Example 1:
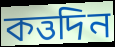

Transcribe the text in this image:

কত্তদিন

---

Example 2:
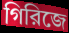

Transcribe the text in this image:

গিরিজে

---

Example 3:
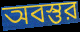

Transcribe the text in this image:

অবস্তুর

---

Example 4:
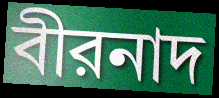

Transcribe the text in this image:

বীরনাদ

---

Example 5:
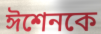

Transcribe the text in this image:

ঈশেনকে